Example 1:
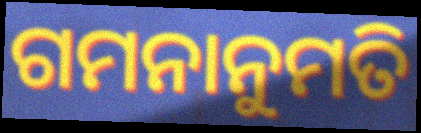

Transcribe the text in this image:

ଗମନାନୁମତି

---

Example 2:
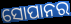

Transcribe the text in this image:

ସୋପାନର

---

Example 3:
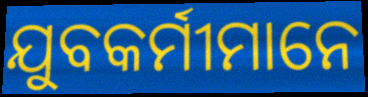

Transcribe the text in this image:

ଯୁବକର୍ମୀମାନେ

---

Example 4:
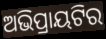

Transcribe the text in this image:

ଅଭିପ୍ରାୟଟିର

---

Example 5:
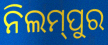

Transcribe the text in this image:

ନିଲମ୍‍ପୁର